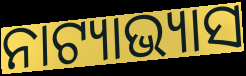
ନାଟ୍ୟାଭ୍ୟାସ